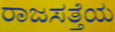
ರಾಜಸತ್ತೆಯ